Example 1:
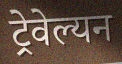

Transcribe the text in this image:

ट्रेवेल्यन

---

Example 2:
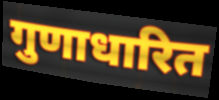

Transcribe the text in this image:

गुणाधारित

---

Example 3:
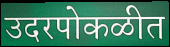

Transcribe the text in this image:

उदरपोकळीत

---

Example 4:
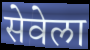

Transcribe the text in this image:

सेवेला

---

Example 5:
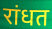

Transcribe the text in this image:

रांधत